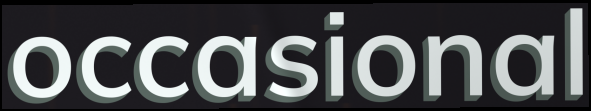
occasional